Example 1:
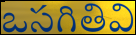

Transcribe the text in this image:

ఒసగితివి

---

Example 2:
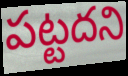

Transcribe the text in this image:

పట్టదని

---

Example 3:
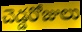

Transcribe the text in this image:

చెడ్డరోజులు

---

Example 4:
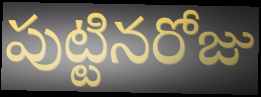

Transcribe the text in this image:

పుట్టినరోజు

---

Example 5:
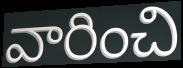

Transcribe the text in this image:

వారించి